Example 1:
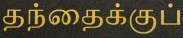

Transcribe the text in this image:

தந்தைக்குப்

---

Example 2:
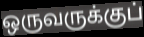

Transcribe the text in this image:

ஒருவருக்குப்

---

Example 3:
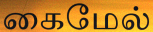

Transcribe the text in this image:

கைமேல்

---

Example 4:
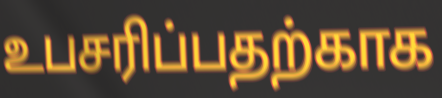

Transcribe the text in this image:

உபசரிப்பதற்காக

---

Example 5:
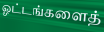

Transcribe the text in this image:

ஓட்டங்களைத்